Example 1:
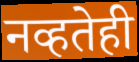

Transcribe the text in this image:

नव्हतेही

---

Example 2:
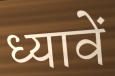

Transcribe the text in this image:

ध्यावें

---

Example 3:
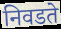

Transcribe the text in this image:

निवडते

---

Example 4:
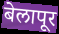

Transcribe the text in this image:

बेलापूर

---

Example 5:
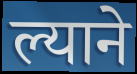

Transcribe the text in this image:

ल्याने